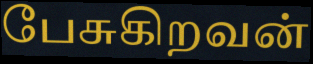
பேசுகிறவன்